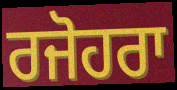
ਰਜੋਹਰਾ